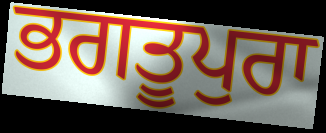
ਭਗਤੂਪੁਰਾ